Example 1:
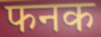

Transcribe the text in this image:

फनक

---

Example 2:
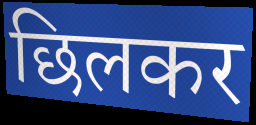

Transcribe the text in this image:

छिलकर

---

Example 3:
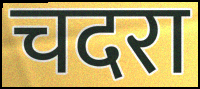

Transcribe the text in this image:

चदरा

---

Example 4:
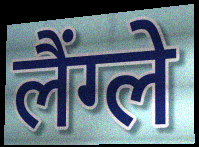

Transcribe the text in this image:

लैंग्ले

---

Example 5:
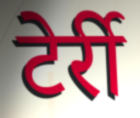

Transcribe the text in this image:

टेर्री